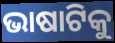
ଭାଷାଟିକୁ